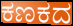
ಕಣಕದ